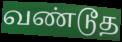
வண்டூத